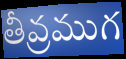
తీవ్రముగ